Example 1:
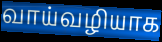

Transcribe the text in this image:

வாய்வழியாக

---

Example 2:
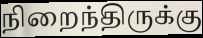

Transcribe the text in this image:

நிறைந்திருக்கு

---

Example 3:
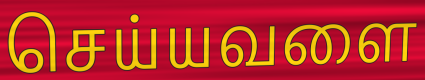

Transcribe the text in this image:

செய்யவளை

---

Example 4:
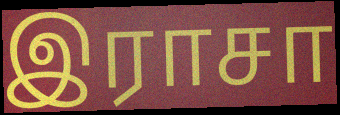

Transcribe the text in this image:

இராசா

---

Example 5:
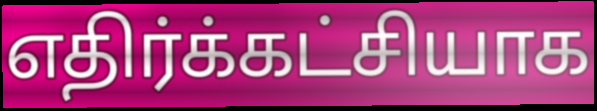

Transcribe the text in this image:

எதிர்க்கட்சியாக